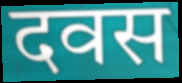
दवस